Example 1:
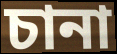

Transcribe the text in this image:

চানা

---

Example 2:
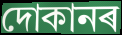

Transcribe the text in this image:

দোকানৰ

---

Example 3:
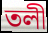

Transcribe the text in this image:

তলী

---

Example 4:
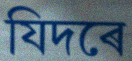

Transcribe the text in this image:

যিদৰে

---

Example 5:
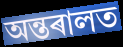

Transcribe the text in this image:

অন্তৰালত